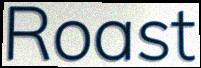
Roast